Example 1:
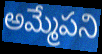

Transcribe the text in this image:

అమ్మేపని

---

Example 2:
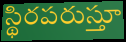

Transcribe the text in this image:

స్థిరపరుస్తూ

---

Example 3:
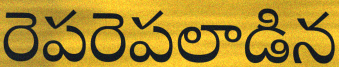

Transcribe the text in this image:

రెపరెపలాడిన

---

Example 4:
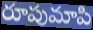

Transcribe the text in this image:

రూపుమాపి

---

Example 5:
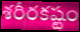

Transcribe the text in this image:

శరీరకష్టం